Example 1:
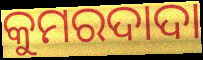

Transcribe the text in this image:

କୁମରଦାଦା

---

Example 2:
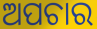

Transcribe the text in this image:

ଅପଚାର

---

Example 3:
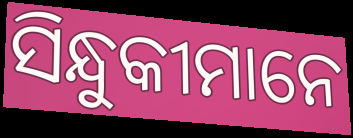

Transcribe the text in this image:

ସିନ୍ଧୁକୀମାନେ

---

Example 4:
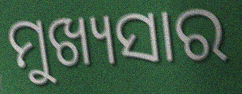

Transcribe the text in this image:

ମୁଖ୍ୟସାର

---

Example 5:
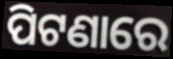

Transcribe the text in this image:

ପିଟଣାରେ